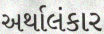
અર્થાલંકાર